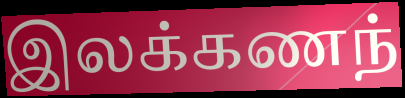
இலக்கணந்